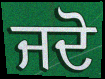
ਜਦੋ